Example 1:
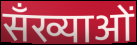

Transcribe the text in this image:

सँख्याओं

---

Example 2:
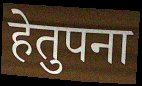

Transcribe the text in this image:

हेतुपना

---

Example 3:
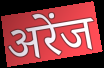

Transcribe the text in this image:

अरेंज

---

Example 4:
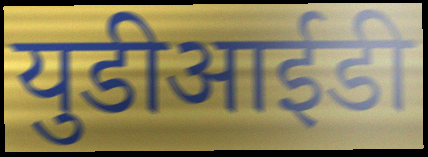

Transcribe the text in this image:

युडीआईडी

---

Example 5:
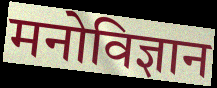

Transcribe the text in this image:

मनोविज्ञान